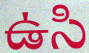
ఉసి